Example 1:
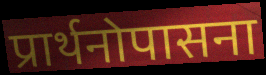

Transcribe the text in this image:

प्रार्थनोपासना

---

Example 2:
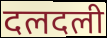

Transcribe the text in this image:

दलदली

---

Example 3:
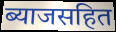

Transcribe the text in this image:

ब्याजसहित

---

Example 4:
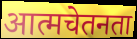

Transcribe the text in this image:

आत्मचेतनता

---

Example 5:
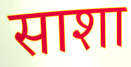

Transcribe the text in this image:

साशा